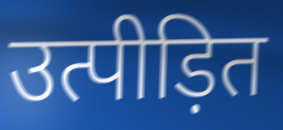
उत्पीड़ित